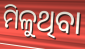
ମିଳୁଥିବା